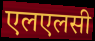
एलएलसी